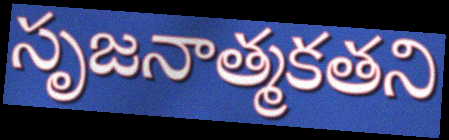
సృజనాత్మకతని